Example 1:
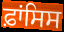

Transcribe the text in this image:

ਫ਼ਾਂਸਿਸ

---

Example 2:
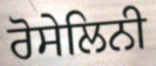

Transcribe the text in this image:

ਰੋਸੇਲਿਨੀ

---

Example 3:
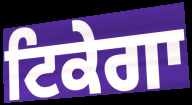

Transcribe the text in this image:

ਟਿਕੇਗਾ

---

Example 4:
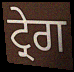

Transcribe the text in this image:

ਟ੍ਰੇਗ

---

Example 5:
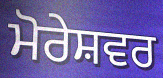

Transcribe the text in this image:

ਮੋਰੇਸ਼ਵਰ